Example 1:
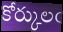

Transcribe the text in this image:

కోర్కులఁ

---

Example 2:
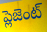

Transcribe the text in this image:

ప్లెజెంట్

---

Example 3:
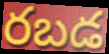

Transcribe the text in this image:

రబడ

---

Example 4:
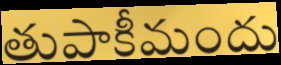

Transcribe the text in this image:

తుపాకీమందు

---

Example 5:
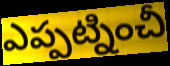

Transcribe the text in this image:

ఎప్పట్నించీ